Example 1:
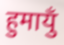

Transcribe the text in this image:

हुमायुँ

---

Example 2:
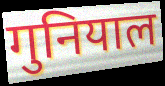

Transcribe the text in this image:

गुनियाल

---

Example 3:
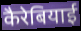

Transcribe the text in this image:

कैरेबियाई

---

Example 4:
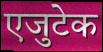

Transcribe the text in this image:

एजुटेक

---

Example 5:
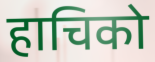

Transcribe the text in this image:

हाचिको